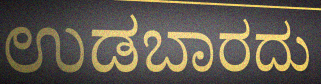
ಉಡಬಾರದು